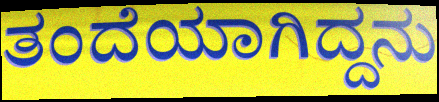
ತಂದೆಯಾಗಿದ್ದನು